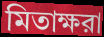
মিতাক্ষরা